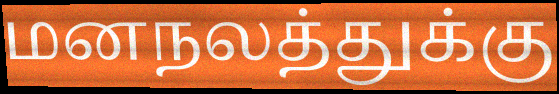
மனநலத்துக்கு